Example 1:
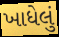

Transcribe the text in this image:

ખાધેલું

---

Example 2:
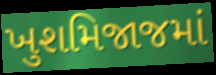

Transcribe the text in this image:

ખુશમિજાજમાં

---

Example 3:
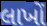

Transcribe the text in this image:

લાખોં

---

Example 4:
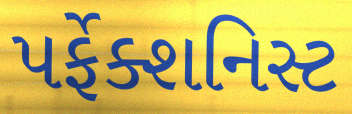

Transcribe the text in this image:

પર્ફેક્શનિસ્ટ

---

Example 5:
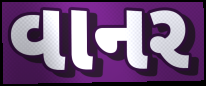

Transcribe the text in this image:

વાનર